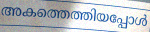
അകത്തെത്തിയപ്പോൾ